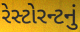
રેસ્ટોરન્ટનું